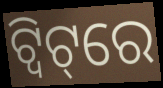
ଟ୍ବିଟ୍‌ରେ